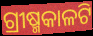
ଗ୍ରୀଷ୍ମକାଳଟି